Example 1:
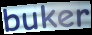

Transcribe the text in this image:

buker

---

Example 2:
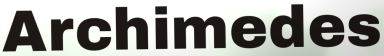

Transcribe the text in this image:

Archimedes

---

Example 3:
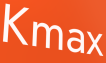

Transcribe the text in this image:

Kmax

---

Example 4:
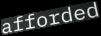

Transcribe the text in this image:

afforded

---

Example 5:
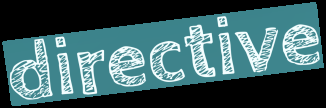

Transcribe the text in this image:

directive